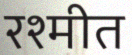
रश्मीत